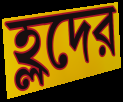
হ্লদের